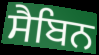
ਸੈਬਿਨ